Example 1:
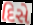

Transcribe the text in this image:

દિસે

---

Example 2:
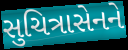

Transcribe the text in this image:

સુચિત્રાસેનને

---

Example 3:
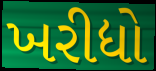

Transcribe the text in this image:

ખરીદ્યો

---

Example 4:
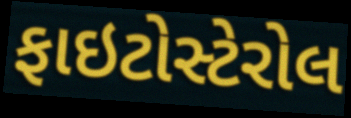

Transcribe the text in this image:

ફાઇટોસ્ટેરોલ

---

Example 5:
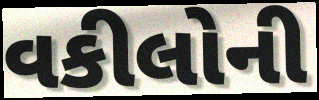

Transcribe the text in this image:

વકીલોની